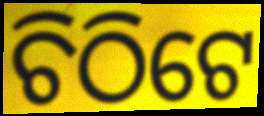
ଚିଠିଟେ